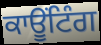
ਕਾਊਂਟਿੰਗ